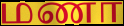
மணா